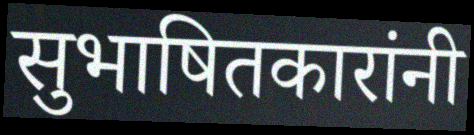
सुभाषितकारांनी